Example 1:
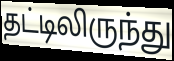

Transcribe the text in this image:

தட்டிலிருந்து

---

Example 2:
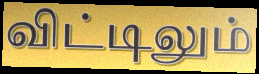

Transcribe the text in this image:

விட்டிலும்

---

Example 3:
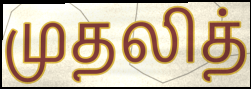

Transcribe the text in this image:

முதலித்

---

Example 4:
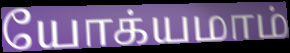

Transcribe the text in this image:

யோக்யமாம்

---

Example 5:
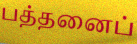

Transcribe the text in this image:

பத்தனைப்